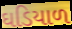
ઘડિયાળ